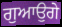
ਗੁਆਉਗੇ